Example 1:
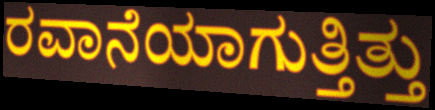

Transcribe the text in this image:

ರವಾನೆಯಾಗುತ್ತಿತ್ತು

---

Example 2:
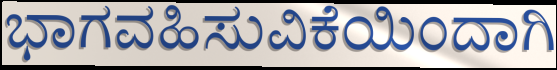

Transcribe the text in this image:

ಭಾಗವಹಿಸುವಿಕೆಯಿಂದಾಗಿ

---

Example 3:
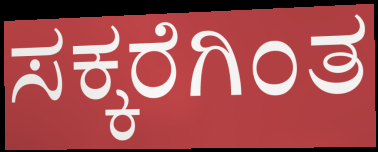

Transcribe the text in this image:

ಸಕ್ಕರೆಗಿಂತ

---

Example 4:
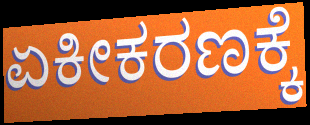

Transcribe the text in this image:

ಏಕೀಕರಣಕ್ಕೆ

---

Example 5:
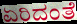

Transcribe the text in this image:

ಏರಿದಂತೆ